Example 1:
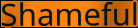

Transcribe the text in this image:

Shameful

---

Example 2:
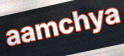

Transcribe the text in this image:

aamchya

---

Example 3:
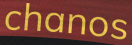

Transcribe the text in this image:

chanos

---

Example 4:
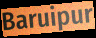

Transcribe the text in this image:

Baruipur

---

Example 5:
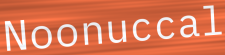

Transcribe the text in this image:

Noonuccal